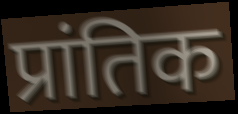
प्रांतिक